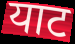
याट